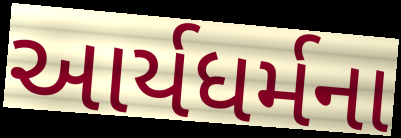
આર્યધર્મના